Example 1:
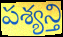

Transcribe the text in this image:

పశ్యన్తి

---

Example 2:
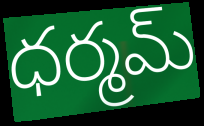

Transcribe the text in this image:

ధర్మమ్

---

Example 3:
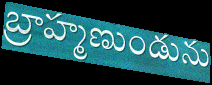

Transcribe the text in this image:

బ్రాహ్మణుండును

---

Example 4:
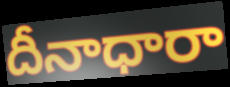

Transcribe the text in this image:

దీనాధారా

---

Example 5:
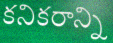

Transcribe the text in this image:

కనికరాన్ని